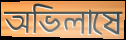
অভিলাষে